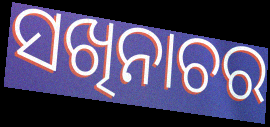
ସଖିନାଚର